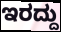
ಇರದ್ದು